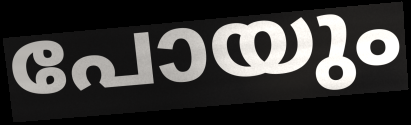
പോയും